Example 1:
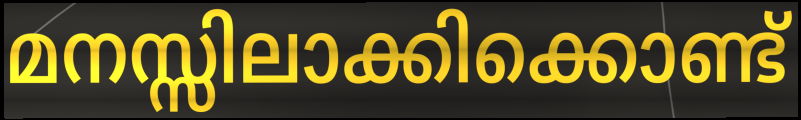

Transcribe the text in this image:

മനസ്സിലാക്കിക്കൊണ്ട്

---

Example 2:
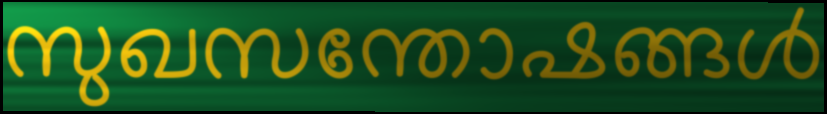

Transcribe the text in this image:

സുഖസന്തോഷങ്ങൾ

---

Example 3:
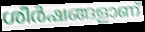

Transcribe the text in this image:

ശീർഷങ്ങളാണ്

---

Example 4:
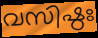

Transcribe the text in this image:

വസിഷ്ഠഃ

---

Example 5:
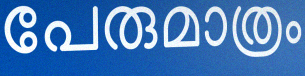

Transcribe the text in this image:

പേരുമാത്രം